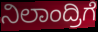
ನಿಲಾಂದ್ರಿಗೆ